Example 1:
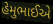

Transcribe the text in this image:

હેમુભાઈએ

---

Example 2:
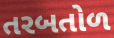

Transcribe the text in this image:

તરબતોળ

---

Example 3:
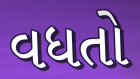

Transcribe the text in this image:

વધતો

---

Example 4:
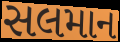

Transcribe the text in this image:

સલમાન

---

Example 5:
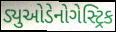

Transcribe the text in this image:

ડ્યુઓડેનોગેસ્ટ્રિક